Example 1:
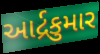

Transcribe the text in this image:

આર્દ્રકુમાર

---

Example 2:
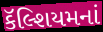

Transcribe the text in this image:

કૅલ્શિયમનાં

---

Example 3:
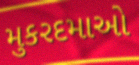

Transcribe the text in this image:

મુકરદમાઓ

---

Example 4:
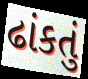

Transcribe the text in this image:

ઢાંકતું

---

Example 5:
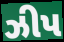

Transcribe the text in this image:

ઝીપ